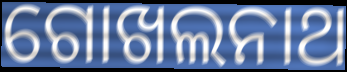
ଗୋଖଲନାଥ